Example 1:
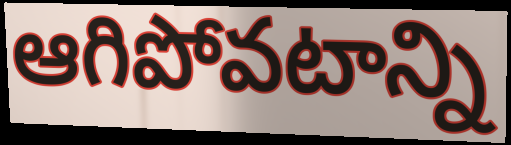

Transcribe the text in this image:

ఆగిపోవటాన్ని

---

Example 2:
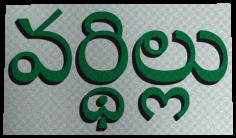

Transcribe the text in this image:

వర్థిల్లు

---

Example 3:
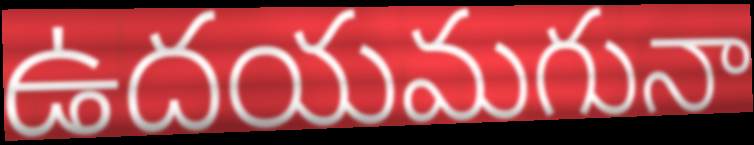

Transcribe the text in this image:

ఉదయమగునా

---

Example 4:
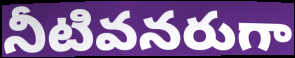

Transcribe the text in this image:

నీటివనరుగా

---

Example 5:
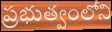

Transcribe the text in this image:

ప్రభుత్వంలోని